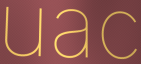
uac